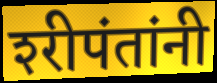
श्रीपंतांनी